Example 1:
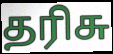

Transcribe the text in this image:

தரிசு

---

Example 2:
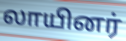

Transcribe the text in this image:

லாயினர்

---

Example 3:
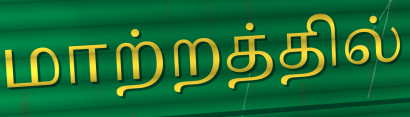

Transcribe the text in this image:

மாற்றத்தில்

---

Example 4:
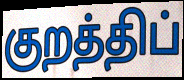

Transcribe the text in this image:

குறத்திப்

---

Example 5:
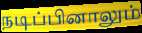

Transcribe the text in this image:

நடிப்பினாலும்